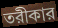
তরীকার